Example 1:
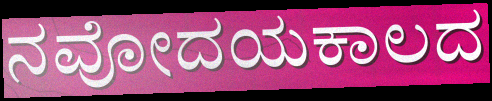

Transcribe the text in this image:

ನವೋದಯಕಾಲದ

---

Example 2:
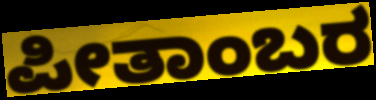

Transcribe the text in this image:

ಪೀತಾಂಬರ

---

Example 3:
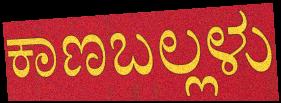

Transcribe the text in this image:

ಕಾಣಬಲ್ಲಳು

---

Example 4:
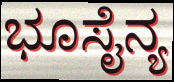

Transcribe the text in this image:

ಭೂಸೈನ್ಯ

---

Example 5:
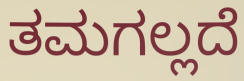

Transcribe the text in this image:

ತಮಗಲ್ಲದೆ